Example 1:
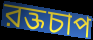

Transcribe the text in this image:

রক্তচাপ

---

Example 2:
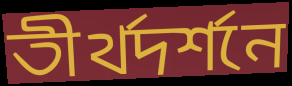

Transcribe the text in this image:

তীর্থদর্শনে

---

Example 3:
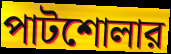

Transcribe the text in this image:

পাটশোলার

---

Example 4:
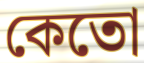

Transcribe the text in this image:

কেতো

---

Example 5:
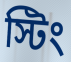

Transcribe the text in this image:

স্টিং